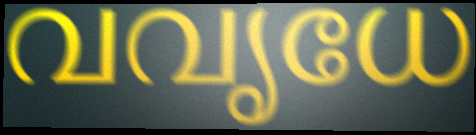
വവൃധേ